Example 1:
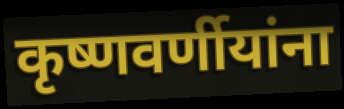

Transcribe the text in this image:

कृष्णवर्णीयांना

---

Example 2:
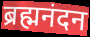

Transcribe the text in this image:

ब्रह्मनंदन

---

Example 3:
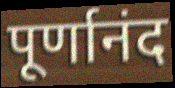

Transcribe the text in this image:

पूर्णानंद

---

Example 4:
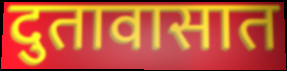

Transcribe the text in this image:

दुतावासात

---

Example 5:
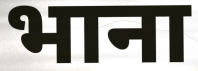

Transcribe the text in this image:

भाना